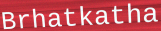
Brhatkatha